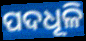
ପଦଧୂଳି